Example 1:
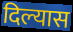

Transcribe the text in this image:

दिल्यास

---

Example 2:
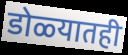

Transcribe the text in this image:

डोळ्यातही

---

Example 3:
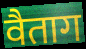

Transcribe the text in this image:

वैताग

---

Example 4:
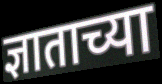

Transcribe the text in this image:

ज्ञाताच्या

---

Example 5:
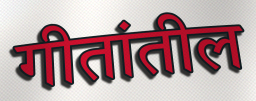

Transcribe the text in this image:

गीतांतील